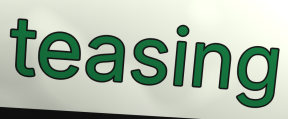
teasing